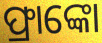
ଫ୍ରାଙ୍କୋ